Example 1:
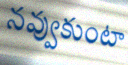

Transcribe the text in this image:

నవ్వుకుంటా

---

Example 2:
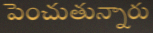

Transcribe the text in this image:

పెంచుతున్నారు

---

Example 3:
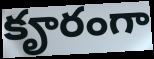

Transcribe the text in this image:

కౄరంగా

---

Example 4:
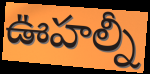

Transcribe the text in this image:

ఊహల్నీ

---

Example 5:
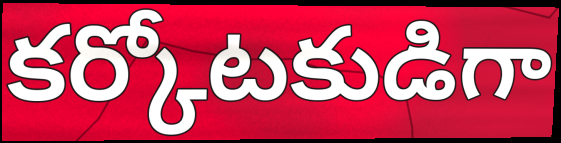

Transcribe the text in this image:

కర్కోటకుడిగా